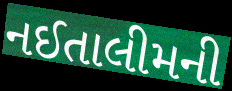
નઈતાલીમની